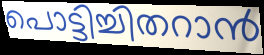
പൊട്ടിച്ചിതറാൻ